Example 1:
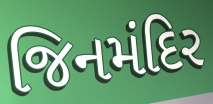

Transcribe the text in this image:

જિનમંદિર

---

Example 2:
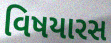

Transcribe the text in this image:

વિષયારસ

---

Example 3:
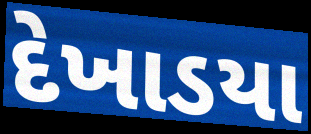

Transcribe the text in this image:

દેખાડયા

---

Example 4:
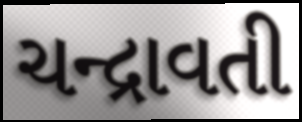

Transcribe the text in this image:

ચન્દ્રાવતી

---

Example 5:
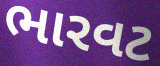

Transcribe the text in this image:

ભારવટ